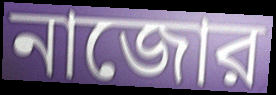
নাজোর